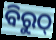
ବିରୁଠ୍